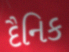
દૈનિક